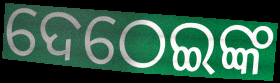
ଦେଠେଇଙ୍କ